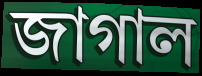
জাগাল